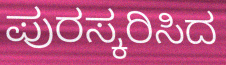
ಪುರಸ್ಕರಿಸಿದ